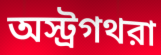
অস্ট্রগথরা